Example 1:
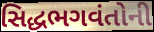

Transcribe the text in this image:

સિદ્ધભગવંતોની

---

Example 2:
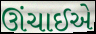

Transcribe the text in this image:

ઊંચાઈએ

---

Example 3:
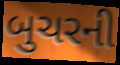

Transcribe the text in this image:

બુચરની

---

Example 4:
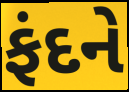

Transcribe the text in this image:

ફંદને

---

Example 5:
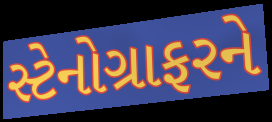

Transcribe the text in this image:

સ્ટેનોગ્રાફરને